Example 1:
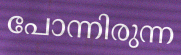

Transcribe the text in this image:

പോന്നിരുന്ന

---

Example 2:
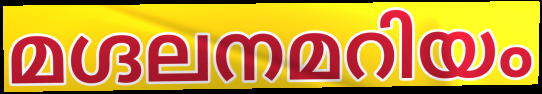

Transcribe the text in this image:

മഗ്ദലനമറിയം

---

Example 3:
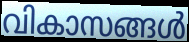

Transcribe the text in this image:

വികാസങ്ങൾ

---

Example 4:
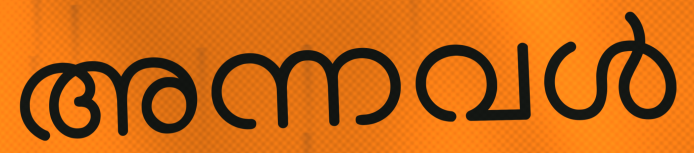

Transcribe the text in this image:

അന്നവൾ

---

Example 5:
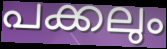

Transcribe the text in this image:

പക്കലും